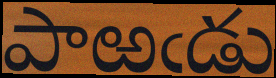
పాఱఁడు